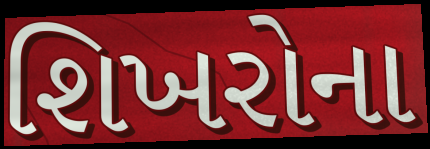
શિખરોના